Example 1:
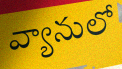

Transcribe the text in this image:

వ్యానులో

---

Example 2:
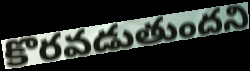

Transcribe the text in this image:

కొరవడుతుందని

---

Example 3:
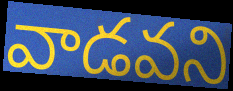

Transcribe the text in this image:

వాడవని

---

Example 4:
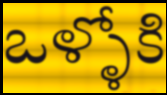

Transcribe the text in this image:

ఒళ్ళోకి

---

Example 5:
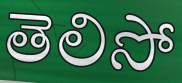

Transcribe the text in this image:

తెలిసో